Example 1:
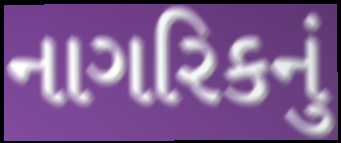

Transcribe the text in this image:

નાગરિકનું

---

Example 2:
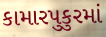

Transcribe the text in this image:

કામારપુકુરમાં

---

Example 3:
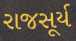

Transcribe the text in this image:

રાજસૂર્ય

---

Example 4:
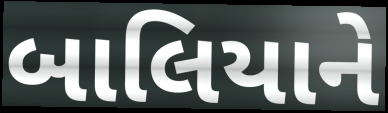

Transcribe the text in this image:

બાલિયાને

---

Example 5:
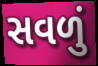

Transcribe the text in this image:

સવળું